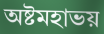
অষ্টমহাভয়